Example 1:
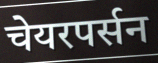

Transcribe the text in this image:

चेयरपर्सन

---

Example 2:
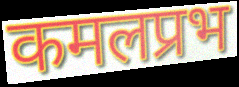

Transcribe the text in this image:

कमलप्रभ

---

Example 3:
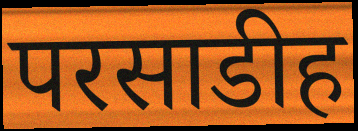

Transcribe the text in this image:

परसाडीह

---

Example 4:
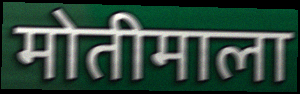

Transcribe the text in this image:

मोतीमाला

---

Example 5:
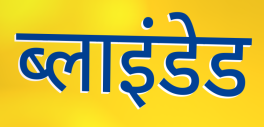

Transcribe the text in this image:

ब्लाइंडेड